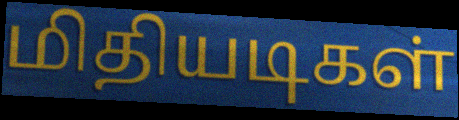
மிதியடிகள்